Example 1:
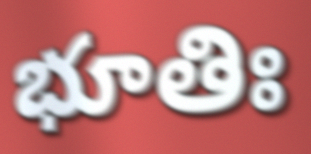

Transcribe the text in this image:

భూతిః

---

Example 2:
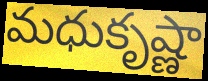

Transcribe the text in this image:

మధుకృష్ణా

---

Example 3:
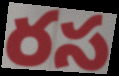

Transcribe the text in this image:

రస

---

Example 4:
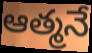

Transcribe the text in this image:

ఆత్మనే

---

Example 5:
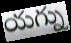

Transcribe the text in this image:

యగ్ను